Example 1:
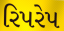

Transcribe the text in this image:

રિપરેપ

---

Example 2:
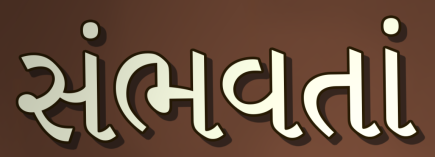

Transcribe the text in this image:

સંભવતાં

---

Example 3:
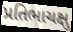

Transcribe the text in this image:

પ્રતિભાચક્ષુ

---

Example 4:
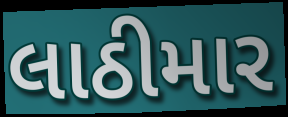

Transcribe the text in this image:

લાઠીમાર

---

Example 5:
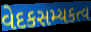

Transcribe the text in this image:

વેદકસમ્યકત્વ